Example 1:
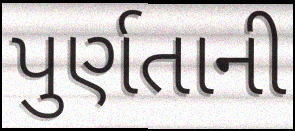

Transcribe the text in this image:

પુર્ણતાની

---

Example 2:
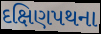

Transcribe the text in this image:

દક્ષિણપથના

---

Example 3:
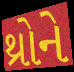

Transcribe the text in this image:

થ્રોને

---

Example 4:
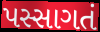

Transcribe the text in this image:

પસ્સાગતં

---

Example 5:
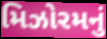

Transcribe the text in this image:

મિઝોરમનું